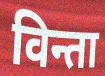
विन्ता